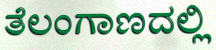
ತೆಲಂಗಾಣದಲ್ಲಿ